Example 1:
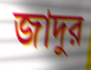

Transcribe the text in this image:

জাদুর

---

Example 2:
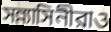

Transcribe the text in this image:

সন্ন্যাসিনীরাও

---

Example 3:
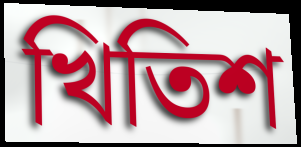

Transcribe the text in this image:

খিতিশ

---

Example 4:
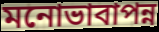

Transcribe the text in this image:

মনোভাবাপন্ন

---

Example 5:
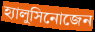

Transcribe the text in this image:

হ্যালুসিনোজেন